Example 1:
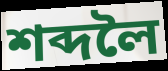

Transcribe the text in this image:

শব্দলৈ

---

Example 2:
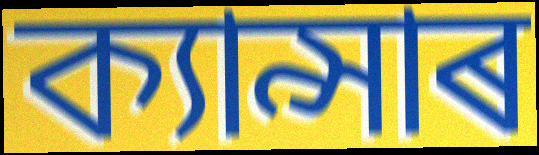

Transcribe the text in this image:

ক্যান্সাৰ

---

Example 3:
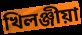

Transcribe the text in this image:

খিলঞ্জীয়া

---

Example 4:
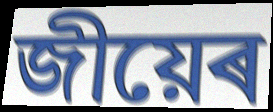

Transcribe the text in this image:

জীয়েৰ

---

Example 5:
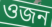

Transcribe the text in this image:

ওজন